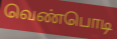
வெண்பொடி